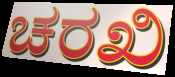
ಚರಖಿ